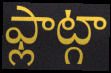
ఫ్లాట్గా